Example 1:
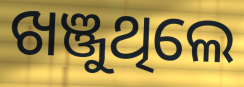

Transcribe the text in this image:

ଖଞ୍ଜୁଥିଲେ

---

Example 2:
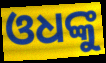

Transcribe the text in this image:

ଓଧଙ୍କୁ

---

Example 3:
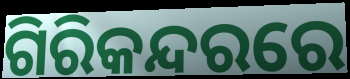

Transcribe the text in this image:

ଗିରିକନ୍ଦରରେ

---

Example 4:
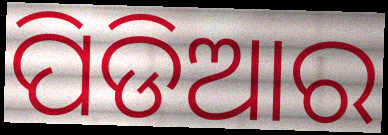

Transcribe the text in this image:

ପିଡିଆର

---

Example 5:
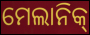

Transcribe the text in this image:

ମେଲାନିକ୍